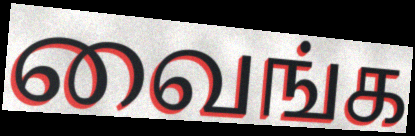
வைங்க